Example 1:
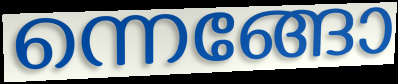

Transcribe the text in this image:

ന്നെങ്ങോ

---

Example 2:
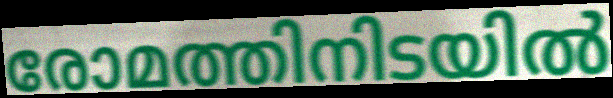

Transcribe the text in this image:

രോമത്തിനിടയിൽ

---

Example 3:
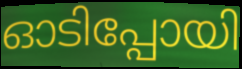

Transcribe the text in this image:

ഓടിപ്പോയി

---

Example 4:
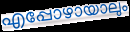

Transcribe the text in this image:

എപ്പോഴായാലും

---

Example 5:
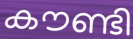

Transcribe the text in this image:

കൗണ്ടി